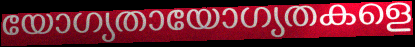
യോഗ്യതായോഗ്യതകളെ